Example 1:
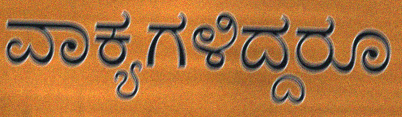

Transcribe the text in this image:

ವಾಕ್ಯಗಳಿದ್ದರೂ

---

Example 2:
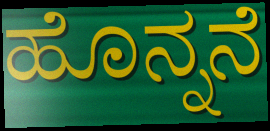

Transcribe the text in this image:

ಹೊನ್ನನೆ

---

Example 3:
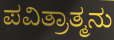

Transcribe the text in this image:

ಪವಿತ್ರಾತ್ಮನು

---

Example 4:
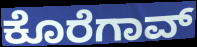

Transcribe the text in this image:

ಕೊರೆಗಾವ್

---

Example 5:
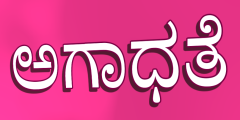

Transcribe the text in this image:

ಅಗಾಧತೆ